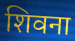
शिवना